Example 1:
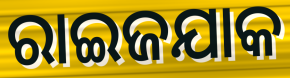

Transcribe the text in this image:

ରାଇଜଯାକ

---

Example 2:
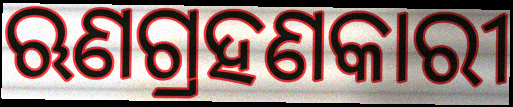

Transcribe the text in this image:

ଋଣଗ୍ରହଣକାରୀ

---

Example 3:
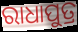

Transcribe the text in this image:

ରାଧାପୁତ୍ର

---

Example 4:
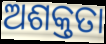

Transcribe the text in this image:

ଅଶକ୍ତତା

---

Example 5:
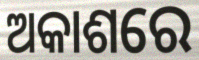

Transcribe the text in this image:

ଅକାଶରେ